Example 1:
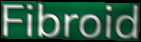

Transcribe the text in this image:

Fibroid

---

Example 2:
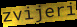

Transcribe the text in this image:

zvijeri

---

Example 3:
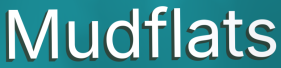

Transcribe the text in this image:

Mudflats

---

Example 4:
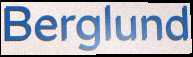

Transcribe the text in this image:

Berglund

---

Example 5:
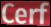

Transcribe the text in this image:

Cerf